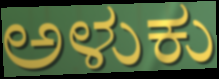
ಅಳುಕು